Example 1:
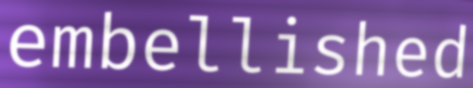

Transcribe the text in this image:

embellished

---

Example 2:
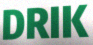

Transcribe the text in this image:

DRIK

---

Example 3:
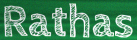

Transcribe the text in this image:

Rathas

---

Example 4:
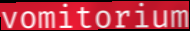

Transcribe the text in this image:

vomitorium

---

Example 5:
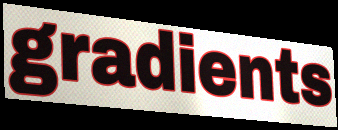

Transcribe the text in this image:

gradients